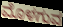
ಮೊಳಗುವ